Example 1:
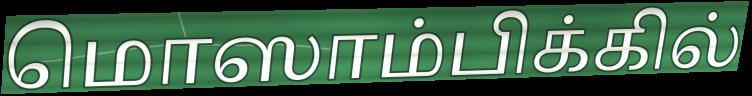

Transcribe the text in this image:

மொஸாம்பிக்கில்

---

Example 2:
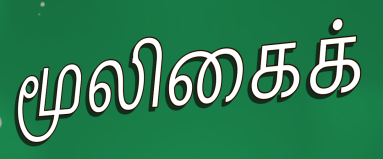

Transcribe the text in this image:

மூலிகைக்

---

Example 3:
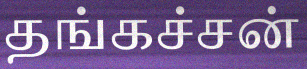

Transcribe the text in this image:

தங்கச்சன்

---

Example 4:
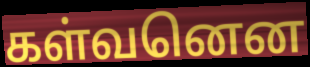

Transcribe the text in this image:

கள்வனென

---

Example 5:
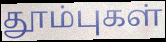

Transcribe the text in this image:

தூம்புகள்